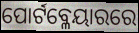
ପୋର୍ଟବ୍ଳେୟାରରେ